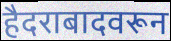
हैदराबादवरून